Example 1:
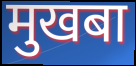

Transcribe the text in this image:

मुखबा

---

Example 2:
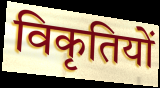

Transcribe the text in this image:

विकृतियों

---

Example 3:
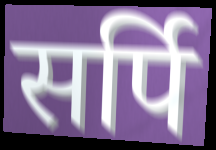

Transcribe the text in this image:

सर्पि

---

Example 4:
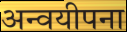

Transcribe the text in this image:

अन्वयीपना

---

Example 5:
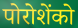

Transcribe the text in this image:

पोरोशेंको